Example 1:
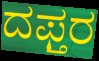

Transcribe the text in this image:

ದಫ್ತರ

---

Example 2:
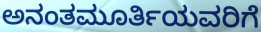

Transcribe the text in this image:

ಅನಂತಮೂರ್ತಿಯವರಿಗೆ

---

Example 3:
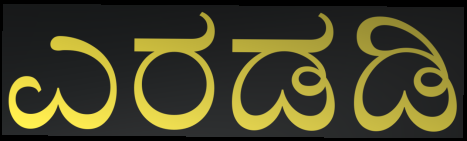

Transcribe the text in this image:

ಎರಡಡಿ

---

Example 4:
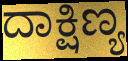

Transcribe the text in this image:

ದಾಕ್ಷಿಣ್ಯ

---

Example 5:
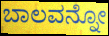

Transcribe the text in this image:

ಬಾಲವನ್ನೋ